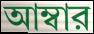
আম্বার